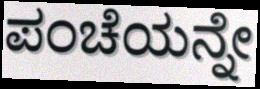
ಪಂಚೆಯನ್ನೇ